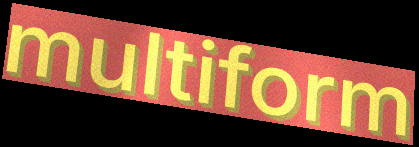
multiform